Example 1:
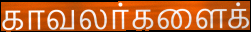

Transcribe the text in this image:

காவலர்களைக்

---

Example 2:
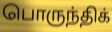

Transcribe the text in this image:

பொருந்திக்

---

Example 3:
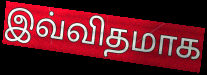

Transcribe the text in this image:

இவ்விதமாக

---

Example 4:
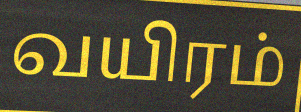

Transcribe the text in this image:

வயிரம்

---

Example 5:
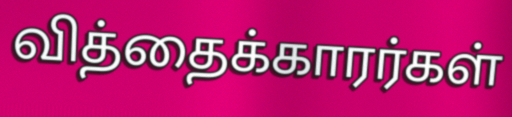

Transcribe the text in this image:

வித்தைக்காரர்கள்